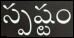
స్పష్టం